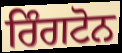
ਰਿੰਗਟੋਨ